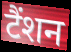
टैंशन